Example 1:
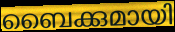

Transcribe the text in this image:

ബൈക്കുമായി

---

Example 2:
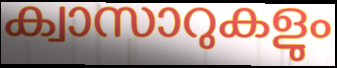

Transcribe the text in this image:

ക്വാസാറുകളും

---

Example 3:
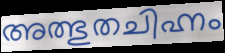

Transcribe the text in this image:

അത്ഭുതചിഹ്നം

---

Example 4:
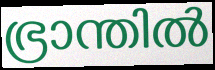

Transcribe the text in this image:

ഭ്രാന്തിൽ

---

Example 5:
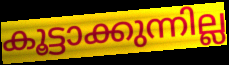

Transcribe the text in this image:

കൂട്ടാക്കുന്നില്ല